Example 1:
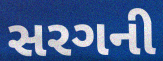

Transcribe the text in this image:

સરગની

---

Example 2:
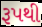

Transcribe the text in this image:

રૂપથી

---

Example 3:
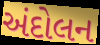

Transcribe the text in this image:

અંદોલન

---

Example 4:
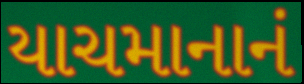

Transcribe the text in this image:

યાચમાનાનં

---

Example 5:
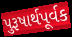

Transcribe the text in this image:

પુરૂષાર્થપૂર્વક